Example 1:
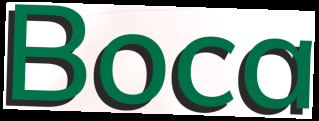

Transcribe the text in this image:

Boca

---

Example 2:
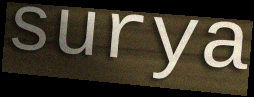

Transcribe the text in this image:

surya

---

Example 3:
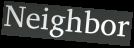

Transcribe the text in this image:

Neighbor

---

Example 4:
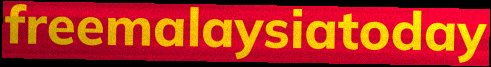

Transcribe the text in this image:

freemalaysiatoday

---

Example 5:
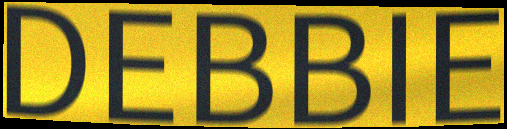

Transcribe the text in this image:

DEBBIE